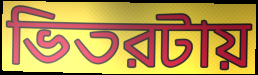
ভিতরটায়